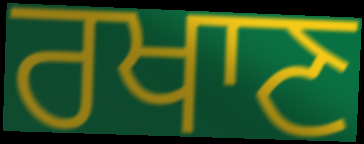
ਰਖਾਣ